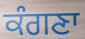
ਕੰਗਣਾ